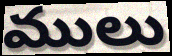
ములు